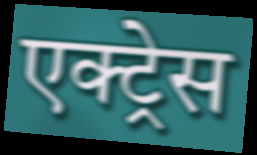
एक्ट्र्रेस